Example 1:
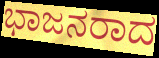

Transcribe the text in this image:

ಭಾಜನರಾದ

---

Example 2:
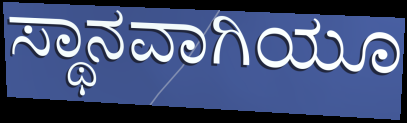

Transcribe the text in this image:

ಸ್ಥಾನವಾಗಿಯೂ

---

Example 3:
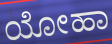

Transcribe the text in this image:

ಯೋಹಾ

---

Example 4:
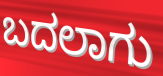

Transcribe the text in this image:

ಬದಲಾಗು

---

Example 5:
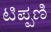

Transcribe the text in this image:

ಟಿಪ್ಪಣಿ